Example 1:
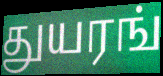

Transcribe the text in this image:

துயரங்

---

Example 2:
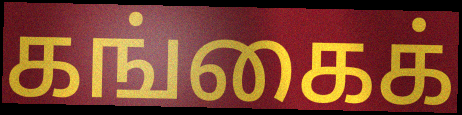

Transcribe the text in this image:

கங்கைக்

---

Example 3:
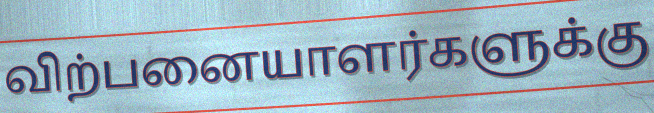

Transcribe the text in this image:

விற்பனையாளர்களுக்கு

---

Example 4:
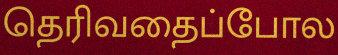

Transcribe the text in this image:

தெரிவதைப்போல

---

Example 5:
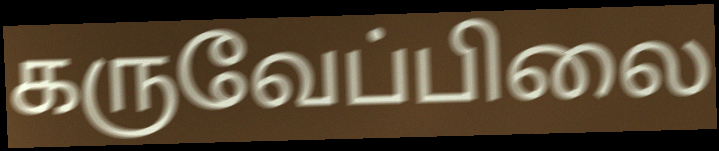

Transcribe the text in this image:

கருவேப்பிலை